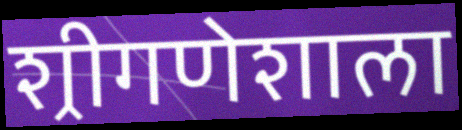
श्रीगणेशाला